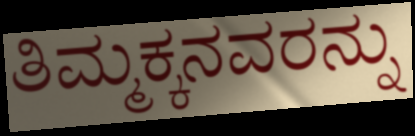
ತಿಮ್ಮಕ್ಕನವರನ್ನು